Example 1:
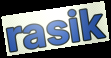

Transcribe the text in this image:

rasik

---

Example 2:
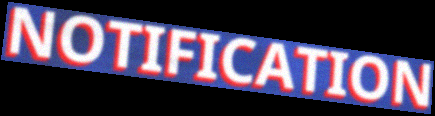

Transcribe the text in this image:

NOTIFICATION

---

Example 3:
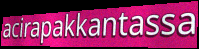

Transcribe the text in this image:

acirapakkantassa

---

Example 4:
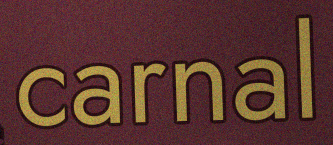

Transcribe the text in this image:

carnal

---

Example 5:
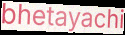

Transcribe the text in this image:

bhetayachi